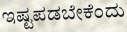
ಇಷ್ಟಪಡಬೇಕೆಂದು